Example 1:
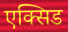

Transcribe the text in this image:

एक्सिड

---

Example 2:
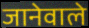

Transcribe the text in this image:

जानेवाले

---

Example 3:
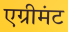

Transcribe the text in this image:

एग्रीमंट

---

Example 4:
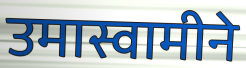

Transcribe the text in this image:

उमास्वामीने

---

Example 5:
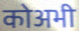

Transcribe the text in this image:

कोअभी